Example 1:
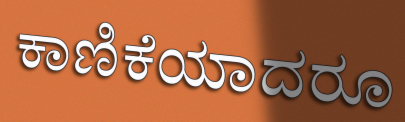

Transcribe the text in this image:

ಕಾಣಿಕೆಯಾದರೂ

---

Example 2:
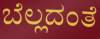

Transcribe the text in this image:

ಬೆಲ್ಲದಂತೆ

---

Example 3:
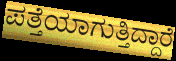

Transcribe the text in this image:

ಪತ್ತೆಯಾಗುತ್ತಿದ್ದಾರೆ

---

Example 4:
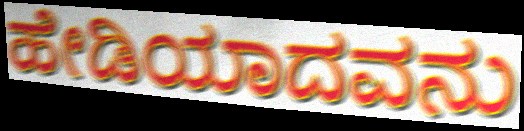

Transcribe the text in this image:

ಹೇಡಿಯಾದವನು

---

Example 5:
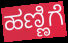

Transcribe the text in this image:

ಹಣ್ಣಿಗೆ